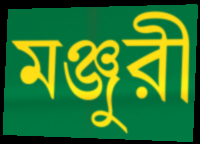
মঞ্জুরী